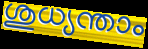
ശുധ്യന്താം